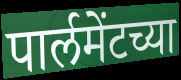
पार्लमेंटच्या